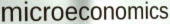
microeconomics